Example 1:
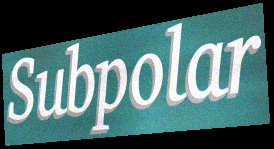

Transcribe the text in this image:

Subpolar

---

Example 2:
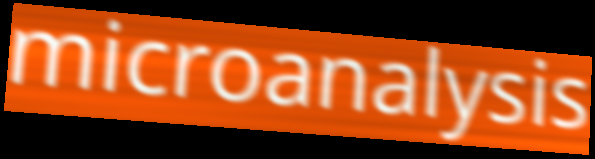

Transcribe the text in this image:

microanalysis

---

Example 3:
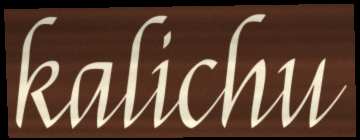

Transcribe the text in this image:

kalichu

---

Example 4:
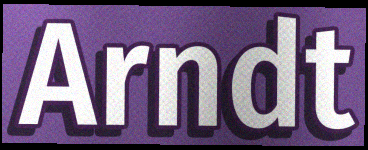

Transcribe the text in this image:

Arndt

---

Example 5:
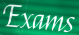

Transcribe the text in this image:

Exams